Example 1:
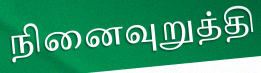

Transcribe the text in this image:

நினைவுறுத்தி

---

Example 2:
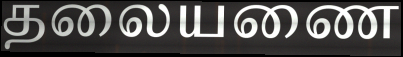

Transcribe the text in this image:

தலையணை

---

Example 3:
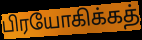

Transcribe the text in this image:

பிரயோகிக்கத்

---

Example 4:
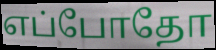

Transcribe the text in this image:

எப்போதோ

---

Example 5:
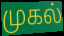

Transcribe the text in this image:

முகல்